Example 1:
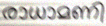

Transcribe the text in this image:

രാധാമണി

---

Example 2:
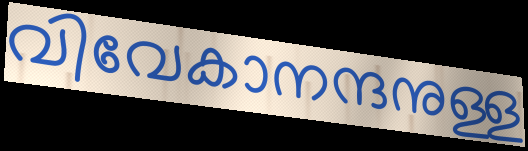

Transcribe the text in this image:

വിവേകാനന്ദനുള്ള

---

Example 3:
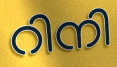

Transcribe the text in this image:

റിനി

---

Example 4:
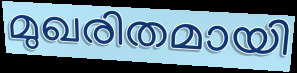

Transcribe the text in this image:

മുഖരിതമായി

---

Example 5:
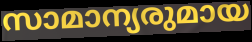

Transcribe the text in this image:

സാമാന്യരുമായ